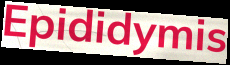
Epididymis